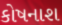
કોષનાશ